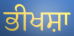
ਭੀਖਸ਼ਾ